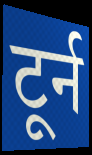
टूर्न